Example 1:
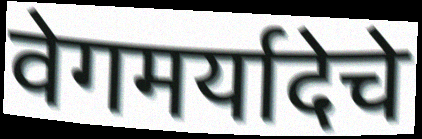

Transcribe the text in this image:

वेगमर्यादेचे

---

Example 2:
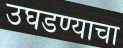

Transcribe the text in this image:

उघडण्याचा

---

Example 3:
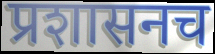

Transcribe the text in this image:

प्रशासनच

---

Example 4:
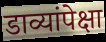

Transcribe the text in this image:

डाव्यांपेक्षा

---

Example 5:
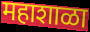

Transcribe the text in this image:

महाशाळा